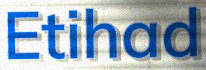
Etihad